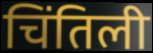
चिंतिली